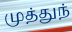
முத்துந்